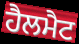
ਹੈਲਮੈਟ